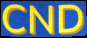
CND